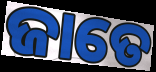
ଜାତେ